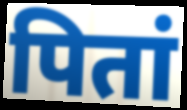
पितां